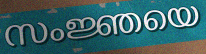
സംജ്ഞയെ